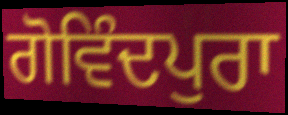
ਗੋਵਿੰਦਪੁਰਾ